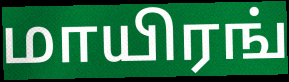
மாயிரங்